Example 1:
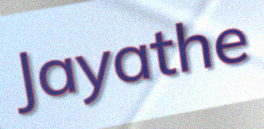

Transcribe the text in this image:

Jayathe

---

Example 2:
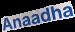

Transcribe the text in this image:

Anaadha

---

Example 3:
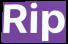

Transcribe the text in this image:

Rip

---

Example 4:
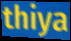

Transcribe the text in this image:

thiya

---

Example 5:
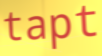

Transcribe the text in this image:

tapt